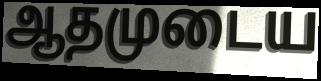
ஆதமுடைய